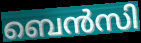
ബെൻസി